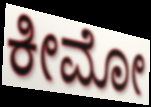
ಕೀಮೋ